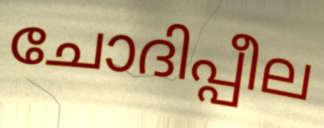
ചോദിപ്പീല